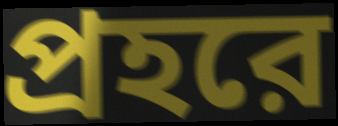
প্রহরে